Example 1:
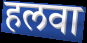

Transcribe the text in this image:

हलवा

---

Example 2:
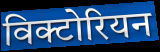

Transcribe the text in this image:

विक्टोरियन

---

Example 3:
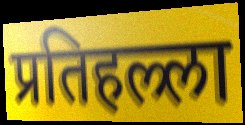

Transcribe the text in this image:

प्रतिहल्ला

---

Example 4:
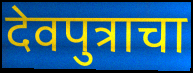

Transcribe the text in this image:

देवपुत्राचा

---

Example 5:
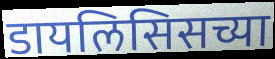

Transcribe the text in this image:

डायलिसिसच्या